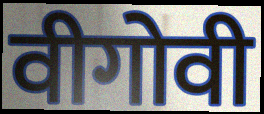
वीगोवी